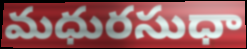
మధురసుధా